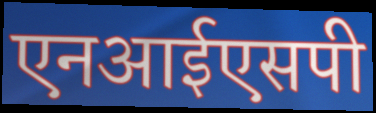
एनआईएसपी